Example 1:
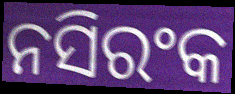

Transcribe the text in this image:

ନସିରଂକ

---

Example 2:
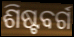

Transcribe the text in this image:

ଶିଷ୍ଟବର୍ଗ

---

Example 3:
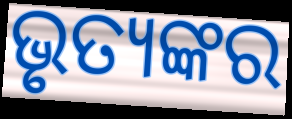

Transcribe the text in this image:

ଭୃତ୍ୟଙ୍କର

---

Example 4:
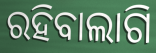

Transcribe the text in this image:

ରହିବାଲାଗି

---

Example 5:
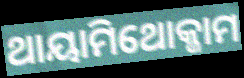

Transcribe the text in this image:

ଥାୟାମିଥୋକ୍ଜାମ